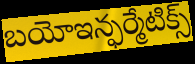
బయోఇన్ఫర్మేటిక్స్